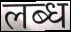
लब्ध